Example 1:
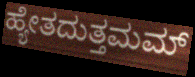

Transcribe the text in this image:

ಹ್ಯೇತದುತ್ತಮಮ್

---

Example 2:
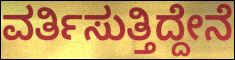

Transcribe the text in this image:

ವರ್ತಿಸುತ್ತಿದ್ದೇನೆ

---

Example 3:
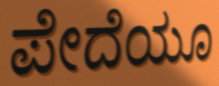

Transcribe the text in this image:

ಪೇದೆಯೂ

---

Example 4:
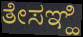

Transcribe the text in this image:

ತೇಸಞ್ಹಿ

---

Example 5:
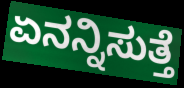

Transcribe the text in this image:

ಏನನ್ನಿಸುತ್ತೆ